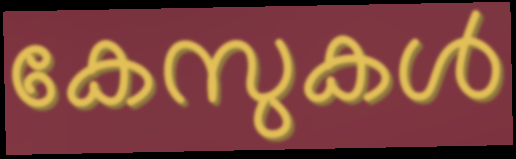
കേസുകൾ